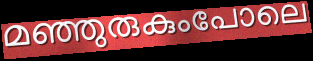
മഞ്ഞുരുകുംപോലെ